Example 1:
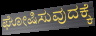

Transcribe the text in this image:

ಘೋಷಿಸುವುದಕ್ಕೆ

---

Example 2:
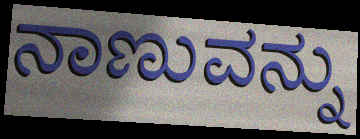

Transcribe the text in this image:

ನಾಣುವನ್ನು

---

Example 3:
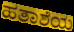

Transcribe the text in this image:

ಹತಾಶೆಯ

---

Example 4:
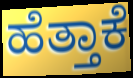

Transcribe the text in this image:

ಹೆತ್ತಾಕೆ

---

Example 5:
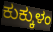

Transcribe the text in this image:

ಕುಕ್ಕುಳಂ